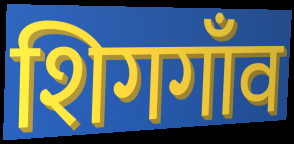
शिगगाँव